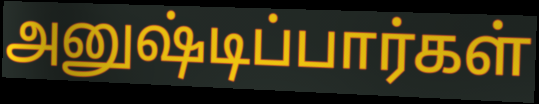
அனுஷ்டிப்பார்கள்